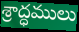
శ్రాద్ధములు